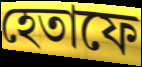
হেতাফে